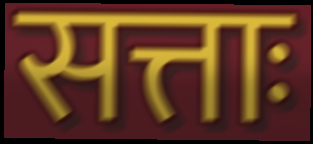
सत्ताः